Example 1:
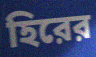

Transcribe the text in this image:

হিরের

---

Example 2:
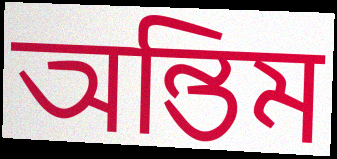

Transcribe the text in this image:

অন্তিম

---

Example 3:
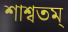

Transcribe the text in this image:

শাশ্বতম্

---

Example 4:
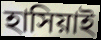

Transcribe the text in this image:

হাসিয়াই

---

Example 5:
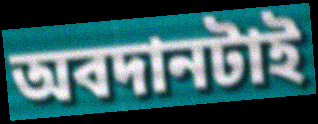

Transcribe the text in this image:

অবদানটাই